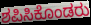
ಶಪಿಸಿಕೊಂಡರು